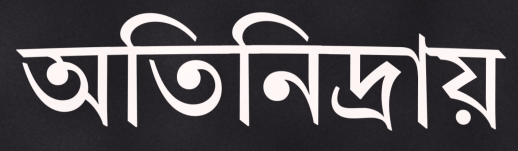
অতিনিদ্রায়